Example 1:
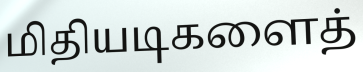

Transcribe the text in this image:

மிதியடிகளைத்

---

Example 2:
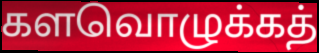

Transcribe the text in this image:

களவொழுக்கத்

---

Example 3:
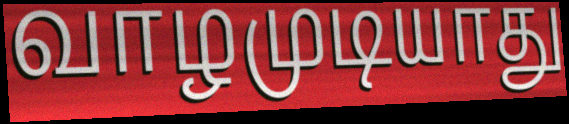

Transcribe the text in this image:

வாழமுடியாது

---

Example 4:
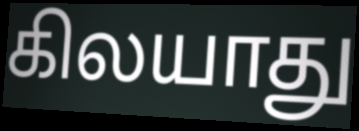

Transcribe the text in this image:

கிலயாது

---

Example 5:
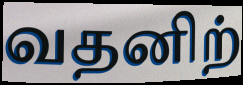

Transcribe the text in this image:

வதனிற்